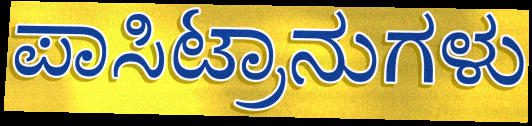
ಪಾಸಿಟ್ರಾನುಗಳು